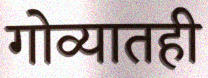
गोव्यातही